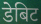
डेबिट